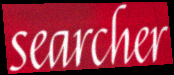
searcher